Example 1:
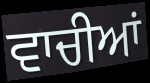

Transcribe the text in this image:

ਵਾਚੀਆਂ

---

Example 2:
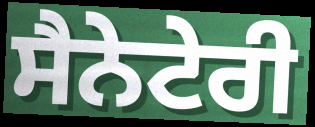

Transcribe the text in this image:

ਸੈਨੇਟੇਰੀ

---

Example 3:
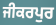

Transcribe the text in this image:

ਜੀਕਰਪੁਰ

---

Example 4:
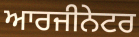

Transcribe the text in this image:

ਆਰਜੀਨੇਟਰ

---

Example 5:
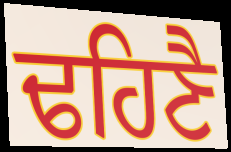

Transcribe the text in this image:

ਢਹਿਣੈ